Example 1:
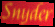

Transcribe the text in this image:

Snyder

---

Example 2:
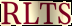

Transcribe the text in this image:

RLTS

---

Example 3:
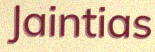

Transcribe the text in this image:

Jaintias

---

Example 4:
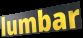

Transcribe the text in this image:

lumbar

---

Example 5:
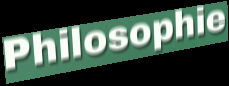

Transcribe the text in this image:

Philosophie